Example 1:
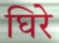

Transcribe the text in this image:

घिरे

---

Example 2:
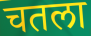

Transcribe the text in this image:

चतला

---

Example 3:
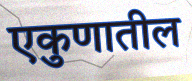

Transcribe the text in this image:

एकुणातील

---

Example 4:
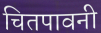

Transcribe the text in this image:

चितपावनी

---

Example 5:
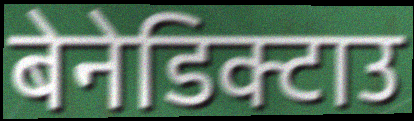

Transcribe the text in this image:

बेनेडिक्टाउ